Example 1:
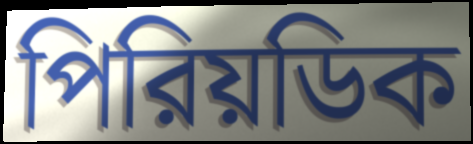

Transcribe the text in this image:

পিরিয়ডিক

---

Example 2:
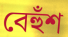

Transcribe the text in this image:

বেহুঁশ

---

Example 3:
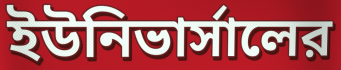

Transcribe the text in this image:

ইউনিভার্সালের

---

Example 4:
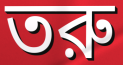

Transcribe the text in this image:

তরু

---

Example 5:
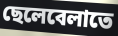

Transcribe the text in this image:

ছেলেবেলাতে